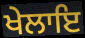
ਖੇਲਾਇ